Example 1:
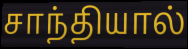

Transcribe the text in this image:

சாந்தியால்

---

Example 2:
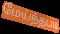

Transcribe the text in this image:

மேய்ந்தபடி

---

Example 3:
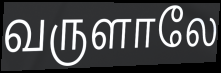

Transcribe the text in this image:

வருளாலே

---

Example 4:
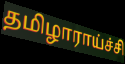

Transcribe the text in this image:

தமிழாராய்ச்சி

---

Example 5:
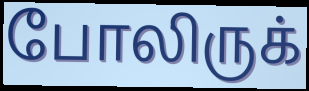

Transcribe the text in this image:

போலிருக்